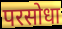
परसोधा